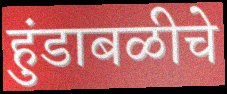
हुंडाबळीचे